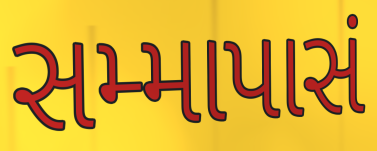
સમ્માપાસં